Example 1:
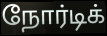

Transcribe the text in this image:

நோர்டிக்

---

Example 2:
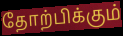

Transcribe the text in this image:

தோற்பிக்கும்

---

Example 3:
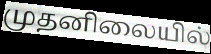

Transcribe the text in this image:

முதனிலையில்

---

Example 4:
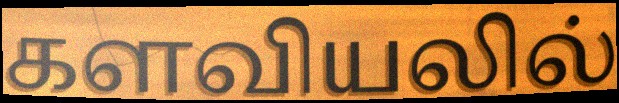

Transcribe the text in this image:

களவியலில்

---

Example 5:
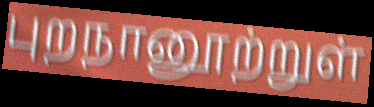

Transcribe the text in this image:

புறநானூற்றுள்